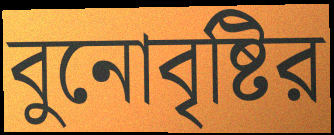
বুনোবৃষ্টির